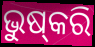
ଭୁଷ୍‌କରି